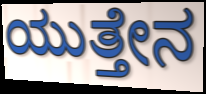
ಯುತ್ತೇನ